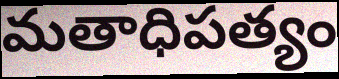
మతాధిపత్యం